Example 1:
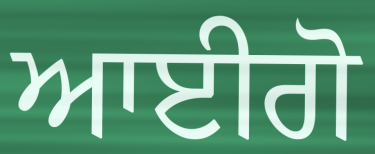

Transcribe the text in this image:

ਆਈਗੋ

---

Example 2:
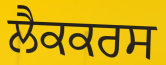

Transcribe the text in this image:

ਲੈਕਕਰਸ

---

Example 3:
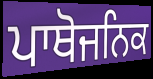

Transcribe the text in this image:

ਪਾਥੋਜਨਿਕ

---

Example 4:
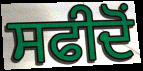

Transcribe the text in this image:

ਸਫੀਦੋਂ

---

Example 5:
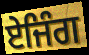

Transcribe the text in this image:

ਏਜਿੰਗ